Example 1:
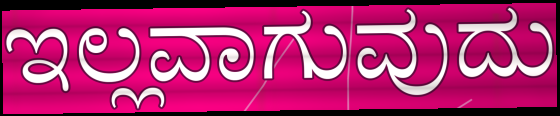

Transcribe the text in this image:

ಇಲ್ಲವಾಗುವುದು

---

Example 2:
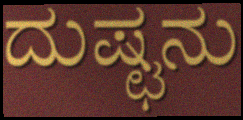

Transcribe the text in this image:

ದುಷ್ಟನು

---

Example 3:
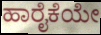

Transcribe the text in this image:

ಹಾರೈಕೆಯೇ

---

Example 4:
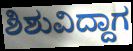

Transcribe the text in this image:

ಶಿಶುವಿದ್ದಾಗ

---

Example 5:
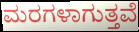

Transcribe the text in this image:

ಮರಗಳಾಗುತ್ತವೆ